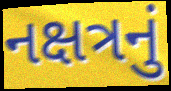
નક્ષત્રનું